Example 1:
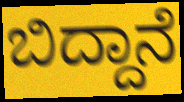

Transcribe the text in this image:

ಬಿದ್ದಾನೆ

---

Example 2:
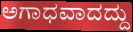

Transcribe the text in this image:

ಅಗಾಧವಾದದ್ದು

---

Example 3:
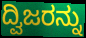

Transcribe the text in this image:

ದ್ವಿಜರನ್ನು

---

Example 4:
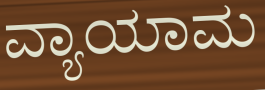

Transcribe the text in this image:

ವ್ಯಾಯಾಮ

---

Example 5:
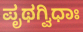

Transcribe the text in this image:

ಪೃಥಗ್ವಿಧಾಃ